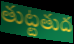
తుట్టతుద